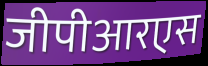
जीपीआरएस